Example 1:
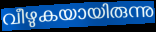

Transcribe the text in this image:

വീഴുകയായിരുന്നു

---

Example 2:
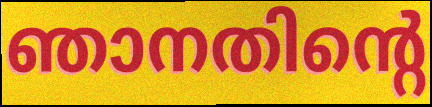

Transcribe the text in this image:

ഞാനതിന്റെ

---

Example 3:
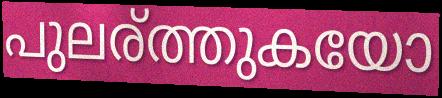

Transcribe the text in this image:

പുലര്ത്തുകയോ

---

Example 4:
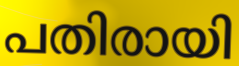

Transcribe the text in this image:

പതിരായി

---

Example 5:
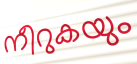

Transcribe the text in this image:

നീറുകയും